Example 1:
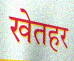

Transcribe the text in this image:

खेतहर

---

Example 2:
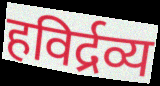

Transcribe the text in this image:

हविर्द्रव्य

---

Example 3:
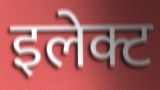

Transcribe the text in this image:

इलेक्ट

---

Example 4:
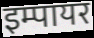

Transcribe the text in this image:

इम्पायर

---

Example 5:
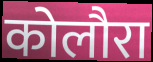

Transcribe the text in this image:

कोलौरा